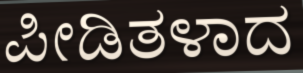
ಪೀಡಿತಳಾದ